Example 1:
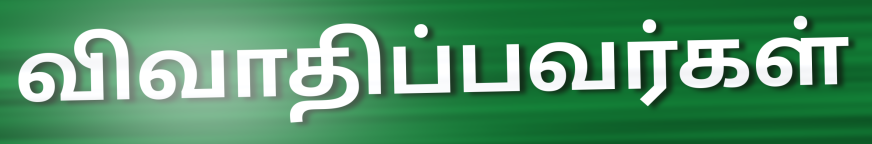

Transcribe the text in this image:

விவாதிப்பவர்கள்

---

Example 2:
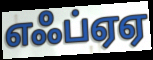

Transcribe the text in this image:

எஃப்ஏஏ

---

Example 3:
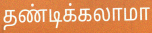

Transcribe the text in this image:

தண்டிக்கலாமா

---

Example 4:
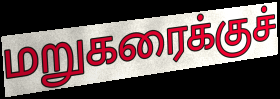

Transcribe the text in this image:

மறுகரைக்குச்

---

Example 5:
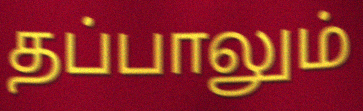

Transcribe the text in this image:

தப்பாலும்